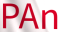
PAn